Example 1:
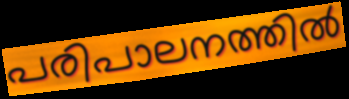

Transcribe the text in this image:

പരിപാലനത്തിൽ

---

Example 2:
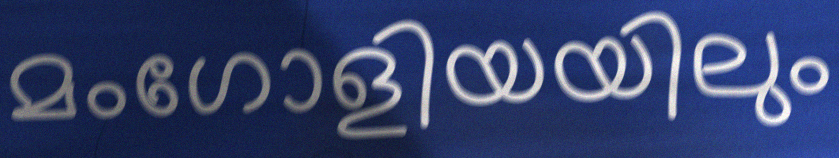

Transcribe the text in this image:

മംഗോളിയയിലും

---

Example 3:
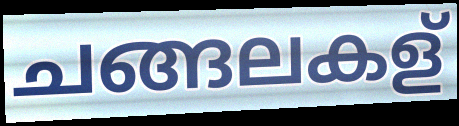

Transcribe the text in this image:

ചങ്ങലകള്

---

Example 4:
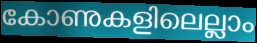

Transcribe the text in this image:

കോണുകളിലെല്ലാം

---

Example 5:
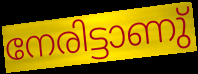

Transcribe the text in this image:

നേരിട്ടാണു്